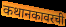
कथानकावरची